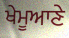
ਖੇਮੂਆਣੇ